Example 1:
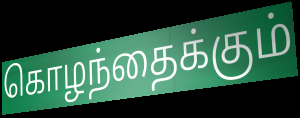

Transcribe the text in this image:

கொழந்தைக்கும்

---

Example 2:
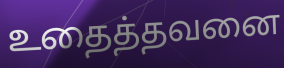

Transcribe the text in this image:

உதைத்தவனை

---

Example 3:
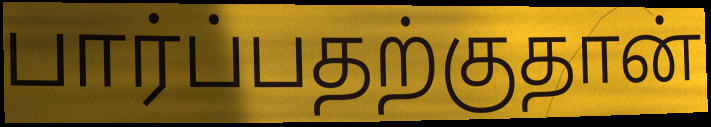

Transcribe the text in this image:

பார்ப்பதற்குதான்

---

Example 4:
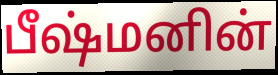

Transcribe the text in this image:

பீஷ்மனின்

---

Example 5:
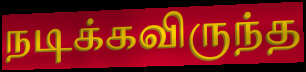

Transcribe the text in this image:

நடிக்கவிருந்த